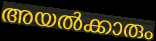
അയൽക്കാരും